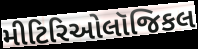
મીટિરિઓલૉજિકલ